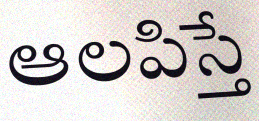
ఆలపిస్తే